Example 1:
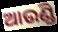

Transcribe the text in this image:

ଆଉଣ୍ଡି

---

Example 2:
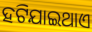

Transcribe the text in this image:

ହଟିଯାଇଥାଏ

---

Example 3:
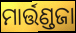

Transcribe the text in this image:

ମାର୍ତ୍ତଣ୍ଡଜା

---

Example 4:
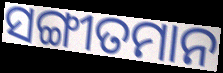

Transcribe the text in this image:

ସଙ୍ଗୀତମାନ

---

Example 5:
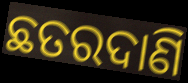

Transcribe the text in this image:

ଛତରଦାଣି